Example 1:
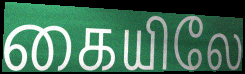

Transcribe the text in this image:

கையிலே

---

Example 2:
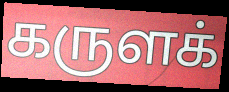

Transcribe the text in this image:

கருளக்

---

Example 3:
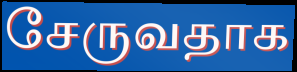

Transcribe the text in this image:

சேருவதாக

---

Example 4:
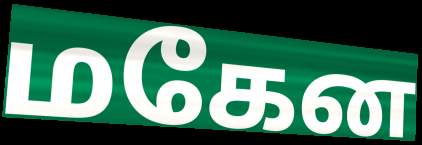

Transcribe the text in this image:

மகேன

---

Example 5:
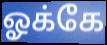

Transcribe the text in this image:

ஓக்கே